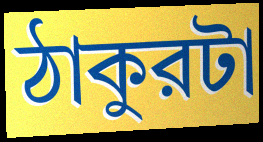
ঠাকুরটা